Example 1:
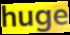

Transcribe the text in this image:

huge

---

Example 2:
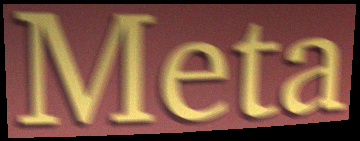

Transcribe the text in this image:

Meta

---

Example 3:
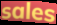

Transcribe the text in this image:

sales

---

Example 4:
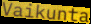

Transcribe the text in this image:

Vaikunta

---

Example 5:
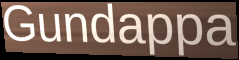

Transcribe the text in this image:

Gundappa